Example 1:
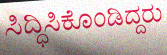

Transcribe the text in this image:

ಸಿದ್ಧಿಸಿಕೊಂಡಿದ್ದರು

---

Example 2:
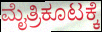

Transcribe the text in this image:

ಮೈತ್ರಿಕೂಟಕ್ಕೆ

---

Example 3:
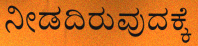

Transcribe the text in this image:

ನೀಡದಿರುವುದಕ್ಕೆ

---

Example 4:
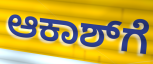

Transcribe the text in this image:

ಆಕಾಶ್‌ಗೆ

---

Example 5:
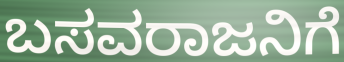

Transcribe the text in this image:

ಬಸವರಾಜನಿಗೆ